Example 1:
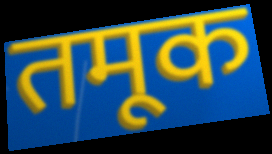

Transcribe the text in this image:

तमूक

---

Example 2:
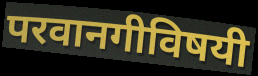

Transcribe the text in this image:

परवानगीविषयी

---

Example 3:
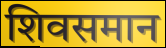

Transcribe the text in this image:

शिवसमान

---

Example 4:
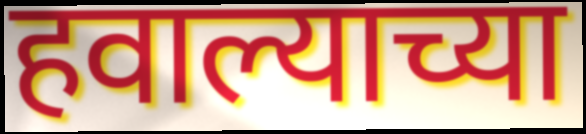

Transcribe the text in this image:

हवाल्याच्या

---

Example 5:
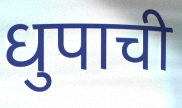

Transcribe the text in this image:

धुपाची